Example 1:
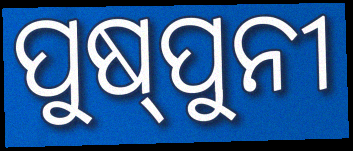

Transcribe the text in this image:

ପୁଷ୍‌ପୁନୀ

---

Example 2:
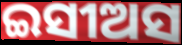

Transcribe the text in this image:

ଇସୀଅସ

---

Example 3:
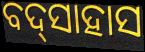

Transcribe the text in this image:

ବଦ୍‌ସାହାସ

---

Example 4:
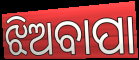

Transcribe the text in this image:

ଝିଅବାପା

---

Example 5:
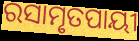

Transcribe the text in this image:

ରସାମୃତପାୟୀ